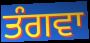
ਤੰਗਵਾ